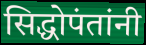
सिद्धोपंतांनी